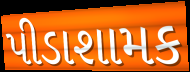
પીડાશામક